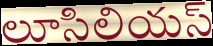
లూసిలియస్